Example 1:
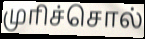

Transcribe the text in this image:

முரிச்சொல்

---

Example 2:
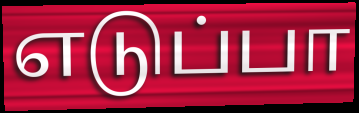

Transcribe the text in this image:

எடுப்பா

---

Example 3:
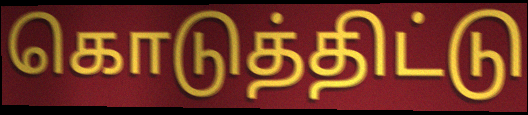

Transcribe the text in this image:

கொடுத்திட்டு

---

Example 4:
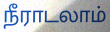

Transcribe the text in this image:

நீராடலாம்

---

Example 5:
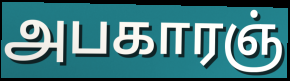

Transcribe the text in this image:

அபகாரஞ்